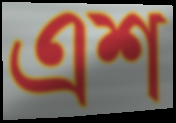
এশ